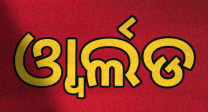
ଓ୍ବାର୍ଲଡ